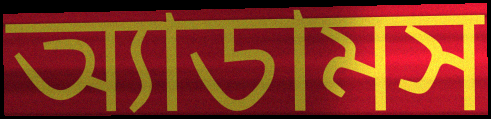
অ্যাডামস